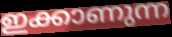
ഇക്കാണുന്ന